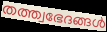
തത്ത്വഭേദങ്ങൾ